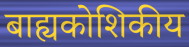
बाह्यकोशिकीय